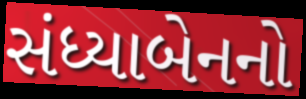
સંધ્યાબેનનો